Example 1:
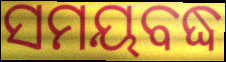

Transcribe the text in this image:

ସମୟବଦ୍ଧ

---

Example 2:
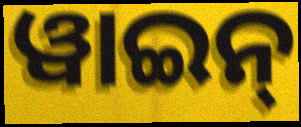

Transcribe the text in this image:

ୱାଇନ୍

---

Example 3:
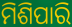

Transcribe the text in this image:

ମିଶିପାରି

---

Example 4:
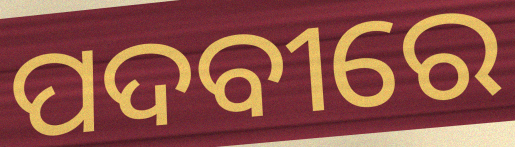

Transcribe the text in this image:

ପଦବୀରେ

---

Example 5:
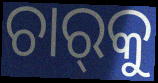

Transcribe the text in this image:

ଚାର୍‌କୁ